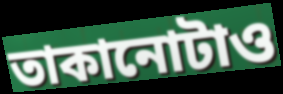
তাকানোটাও